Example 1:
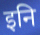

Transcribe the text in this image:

इनि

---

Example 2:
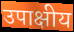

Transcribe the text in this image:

उपाक्षीय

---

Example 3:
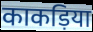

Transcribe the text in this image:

काकड़िया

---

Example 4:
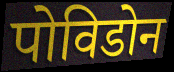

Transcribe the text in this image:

पोविडोन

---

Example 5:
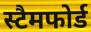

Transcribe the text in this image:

स्टैमफोर्ड